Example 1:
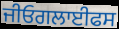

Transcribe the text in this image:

ਜੀਓਗਲਾਈਫਸ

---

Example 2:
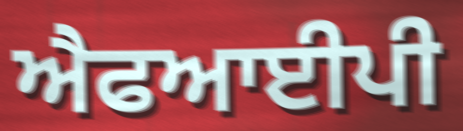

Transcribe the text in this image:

ਐਫਆਈਪੀ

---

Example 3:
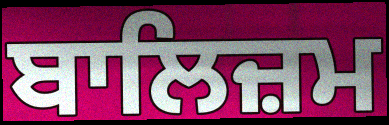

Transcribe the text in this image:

ਬਾਲਿਜ਼ਮ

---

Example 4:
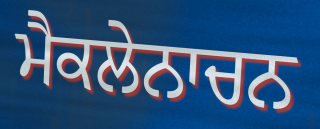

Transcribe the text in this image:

ਮੈਕਲੇਨਾਚਨ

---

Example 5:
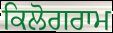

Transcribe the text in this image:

ਕਿਲੋਗਰਾਮ